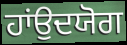
ਹਾਂਉਦਯੋਗ